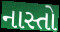
નાસ્તો